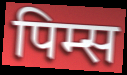
पिम्स